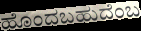
ಹೊಂದಬಹುದೆಂಬ